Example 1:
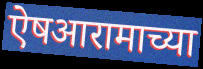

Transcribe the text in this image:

ऐषआरामाच्या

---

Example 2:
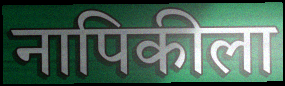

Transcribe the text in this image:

नापिकीला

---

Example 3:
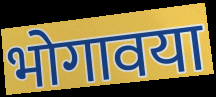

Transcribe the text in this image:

भोगावया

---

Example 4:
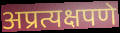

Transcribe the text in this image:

अप्रत्यक्षपणे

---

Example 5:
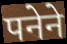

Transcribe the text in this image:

पनेने